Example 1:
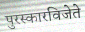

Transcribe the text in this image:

पुरस्कारविजेते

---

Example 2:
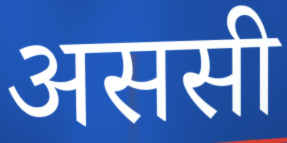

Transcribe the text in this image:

अससी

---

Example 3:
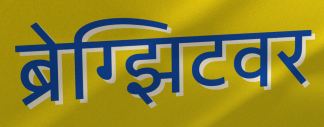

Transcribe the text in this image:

ब्रेग्झिटवर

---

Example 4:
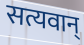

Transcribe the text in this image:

सत्यवान्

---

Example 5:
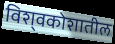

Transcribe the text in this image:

विश्वकोशातील